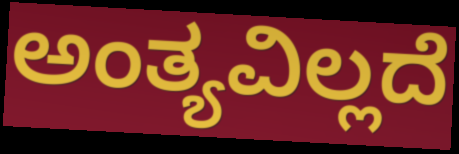
ಅಂತ್ಯವಿಲ್ಲದೆ